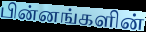
பின்னங்களின்